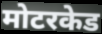
मोटरकेड